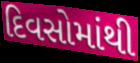
દિવસોમાંથી